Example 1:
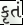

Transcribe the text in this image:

કૃતં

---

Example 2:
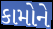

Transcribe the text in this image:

કામોને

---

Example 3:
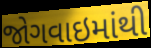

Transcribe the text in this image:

જોગવાઇમાંથી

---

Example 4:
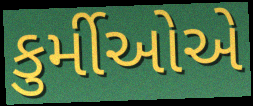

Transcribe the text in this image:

કુર્મીઓએ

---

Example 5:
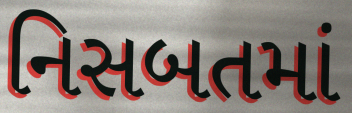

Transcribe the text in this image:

નિસબતમાં